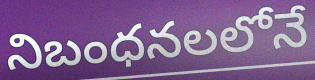
నిబంధనలలోనే